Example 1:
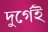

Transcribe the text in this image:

দুর্গেই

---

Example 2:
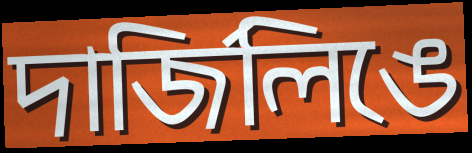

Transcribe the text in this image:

দার্জিলিঙে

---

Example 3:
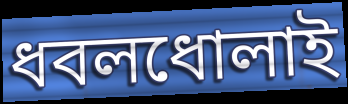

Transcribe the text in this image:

ধবলধোলাই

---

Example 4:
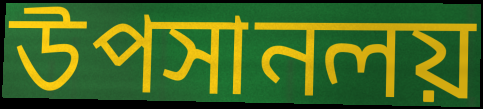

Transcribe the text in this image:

উপসানলয়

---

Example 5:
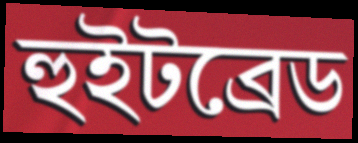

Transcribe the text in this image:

হুইটব্রেড